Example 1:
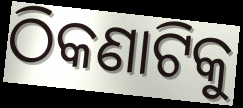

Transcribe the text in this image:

ଠିକଣାଟିକୁ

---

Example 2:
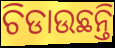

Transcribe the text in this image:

ଚିଡାଉଛନ୍ତି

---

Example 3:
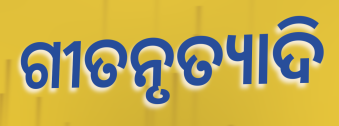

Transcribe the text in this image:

ଗୀତନୃତ୍ୟାଦି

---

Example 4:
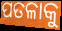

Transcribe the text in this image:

ପତଳାକୁ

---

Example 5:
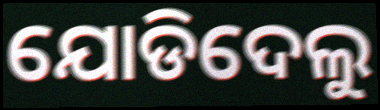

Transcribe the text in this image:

ଯୋଡିଦେଲୁ